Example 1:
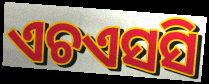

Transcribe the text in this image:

ଏଚଏସସି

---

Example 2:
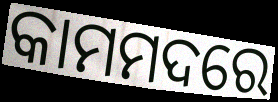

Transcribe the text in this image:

କାମମଦରେ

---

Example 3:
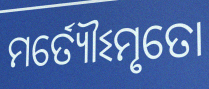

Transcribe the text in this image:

ମର୍ତ୍ୟୌଽମୃତୋ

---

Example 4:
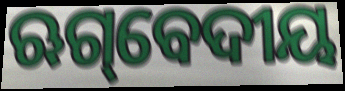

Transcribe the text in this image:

ଋଗ୍‌ବେଦୀୟ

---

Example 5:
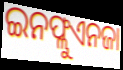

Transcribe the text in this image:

ଇନଫ୍ଲୁଏନଜା